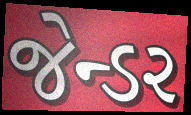
જેન્ડર